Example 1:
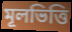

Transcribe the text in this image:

মূলভিত্তি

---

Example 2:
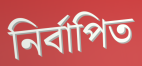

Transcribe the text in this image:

নির্বাপিত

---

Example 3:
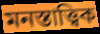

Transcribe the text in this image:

মনস্তাত্ত্বিক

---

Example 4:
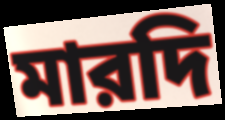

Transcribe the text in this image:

মারদি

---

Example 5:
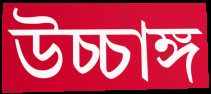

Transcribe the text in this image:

উচ্চাঙ্গ